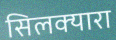
सिलक्यारा